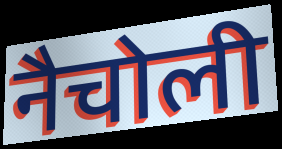
नैचोली